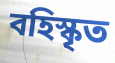
বহিস্কৃত